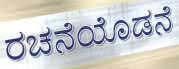
ರಚನೆಯೊಡನೆ